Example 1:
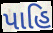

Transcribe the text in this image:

પાહિ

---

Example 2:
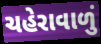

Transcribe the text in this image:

ચહેરાવાળું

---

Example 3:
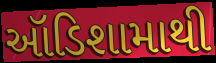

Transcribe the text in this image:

ઑડિશામાથી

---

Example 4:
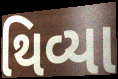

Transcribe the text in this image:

થિવ્યા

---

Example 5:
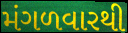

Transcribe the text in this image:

મંગળવારથી